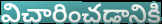
విచారించడానికి